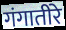
गंगातीरे